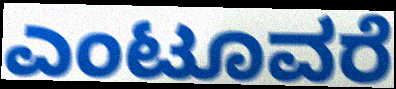
ಎಂಟೂವರೆ